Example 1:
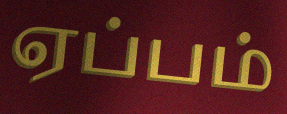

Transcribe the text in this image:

ஏப்பம்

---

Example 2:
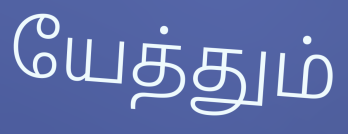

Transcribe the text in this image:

யேத்தும்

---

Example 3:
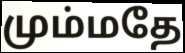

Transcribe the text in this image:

மும்மதே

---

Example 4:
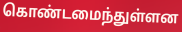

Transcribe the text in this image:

கொண்டமைந்துள்ளன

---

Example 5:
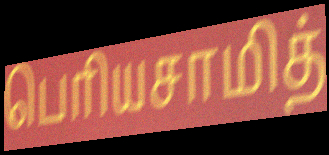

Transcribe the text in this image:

பெரியசாமித்